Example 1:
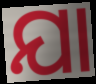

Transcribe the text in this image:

ଯା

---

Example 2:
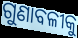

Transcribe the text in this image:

ଗୁଣାବଳୀକୁ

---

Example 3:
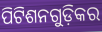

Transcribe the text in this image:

ପିଟିଶନଗୁଡ଼ିକର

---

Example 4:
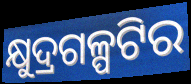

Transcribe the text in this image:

କ୍ଷୁଦ୍ରଗଳ୍ପଟିର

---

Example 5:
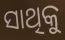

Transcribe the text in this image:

ସାଥିକୁ